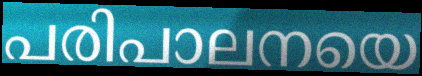
പരിപാലനയെ